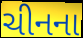
ચીનના